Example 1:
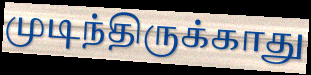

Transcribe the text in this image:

முடிந்திருக்காது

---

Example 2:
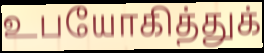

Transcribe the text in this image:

உபயோகித்துக்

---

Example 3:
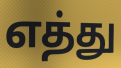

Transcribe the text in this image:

எத்து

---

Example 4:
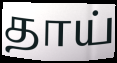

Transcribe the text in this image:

தாய்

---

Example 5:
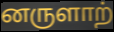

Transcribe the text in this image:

னருளாற்